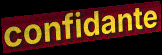
confidante